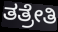
ತತ್ರೇತಿ